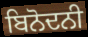
ਬਿਨੋਦਨੀ